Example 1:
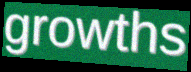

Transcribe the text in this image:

growths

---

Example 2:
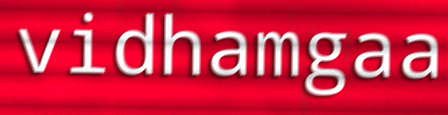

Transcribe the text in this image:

vidhamgaa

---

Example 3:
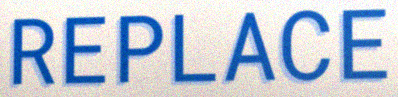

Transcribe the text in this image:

REPLACE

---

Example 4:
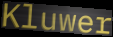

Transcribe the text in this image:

Kluwer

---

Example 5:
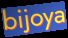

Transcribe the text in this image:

bijoya